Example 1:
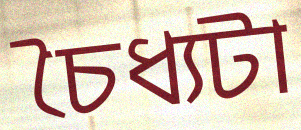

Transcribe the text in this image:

চৈধ্যটা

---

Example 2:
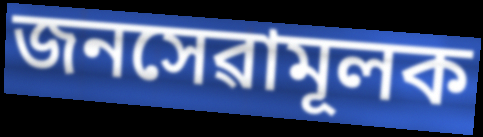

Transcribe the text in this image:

জনসেৱামূলক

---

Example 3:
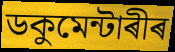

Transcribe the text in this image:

ডকুমেন্টাৰীৰ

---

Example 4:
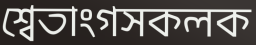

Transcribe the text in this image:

শ্বেতাংগসকলক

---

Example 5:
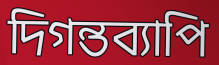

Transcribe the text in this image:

দিগন্তব্যাপি